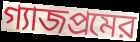
গ্যাজপ্রমের